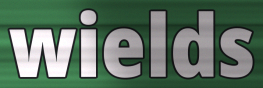
wields